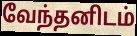
வேந்தனிடம்